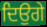
ਦਿਉਗੇ